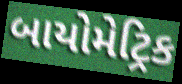
બાયોમેટ્રિક